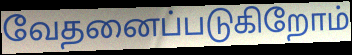
வேதனைப்படுகிறோம்